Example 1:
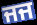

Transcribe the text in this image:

ਜਜ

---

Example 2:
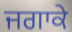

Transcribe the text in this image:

ਜਗਾਕੇ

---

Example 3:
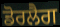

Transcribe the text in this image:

ਡੋਰਲੈਗ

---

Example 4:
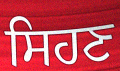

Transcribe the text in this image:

ਸਿਹਣ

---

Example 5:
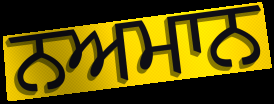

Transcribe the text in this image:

ਨਅਮਾਨ